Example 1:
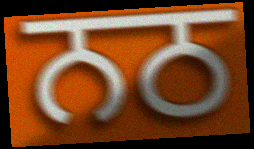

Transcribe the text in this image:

ਨਠ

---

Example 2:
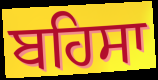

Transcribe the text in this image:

ਬਹਿਸਾ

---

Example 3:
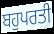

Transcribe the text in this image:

ਬਹੁਪਰਤੀ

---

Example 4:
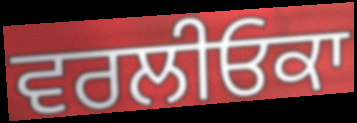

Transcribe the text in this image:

ਵਰਲੀਓਕਾ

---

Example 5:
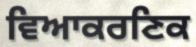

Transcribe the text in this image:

ਵਿਆਕਰਣਿਕ